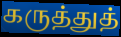
கருத்துத்